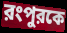
রংপুরকে